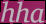
hha